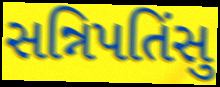
સન્નિપતિંસુ